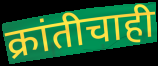
क्रांतीचाही